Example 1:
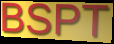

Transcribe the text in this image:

BSPT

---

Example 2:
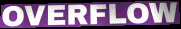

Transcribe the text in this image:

OVERFLOW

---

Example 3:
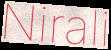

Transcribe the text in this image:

Nirali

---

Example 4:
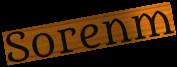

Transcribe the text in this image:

Sorenm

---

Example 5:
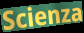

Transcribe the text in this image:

Scienza